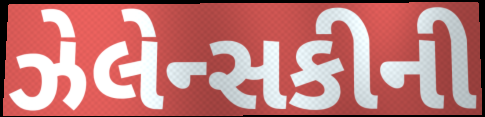
ઝેલેન્સકીની